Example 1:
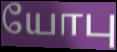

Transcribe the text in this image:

யோபு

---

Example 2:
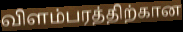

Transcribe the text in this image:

விளம்பரத்திற்கான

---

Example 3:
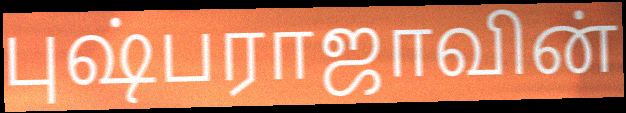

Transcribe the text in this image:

புஷ்பராஜாவின்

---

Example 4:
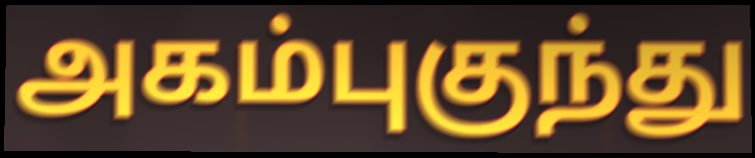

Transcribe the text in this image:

அகம்புகுந்து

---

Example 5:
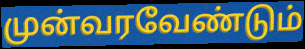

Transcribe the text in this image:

முன்வரவேண்டும்